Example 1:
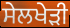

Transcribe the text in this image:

ਸੇਲਖੇੜੀ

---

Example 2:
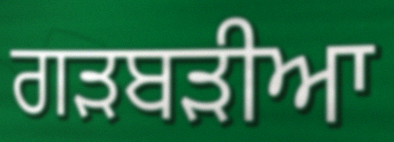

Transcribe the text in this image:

ਗੜਬੜੀਆ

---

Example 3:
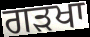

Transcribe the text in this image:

ਗੜਖਾ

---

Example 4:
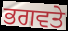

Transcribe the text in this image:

ਭਗਵਤੇ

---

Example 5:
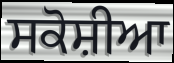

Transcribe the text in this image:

ਸਕੋਸ਼ੀਆ